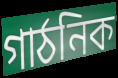
গাঠনিক